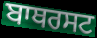
ਬਾਥਰਸਟ